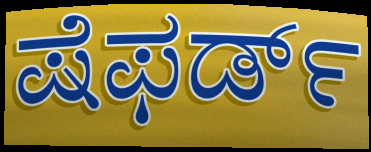
ಷೆಫರ್ಡ್